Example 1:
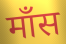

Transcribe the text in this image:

माँस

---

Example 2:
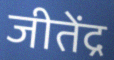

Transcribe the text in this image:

जीतेंद्र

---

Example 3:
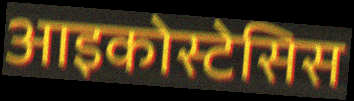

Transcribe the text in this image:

आइकोस्टेसिस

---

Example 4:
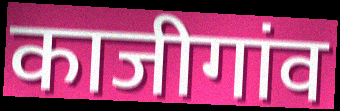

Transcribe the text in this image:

काजीगांव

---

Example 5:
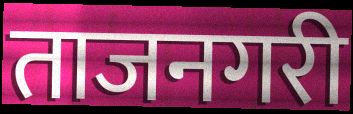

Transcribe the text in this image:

ताजनगरी